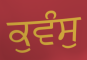
ਕੁਵੰਸੁ